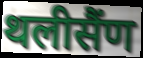
थलीसैंण